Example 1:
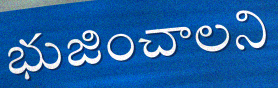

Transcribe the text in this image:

భుజించాలని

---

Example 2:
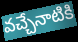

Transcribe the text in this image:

వచ్చేనాటికి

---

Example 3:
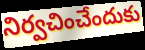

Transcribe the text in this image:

నిర్వచించేందుకు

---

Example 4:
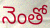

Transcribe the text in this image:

నెంతో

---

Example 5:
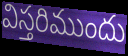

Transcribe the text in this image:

విస్తరిముందు